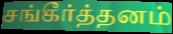
சங்கீர்த்தனம்